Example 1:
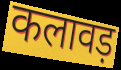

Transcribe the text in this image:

कलावड़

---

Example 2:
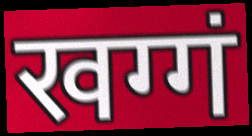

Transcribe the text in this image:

खग्गं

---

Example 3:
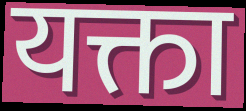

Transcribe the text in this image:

यक्ता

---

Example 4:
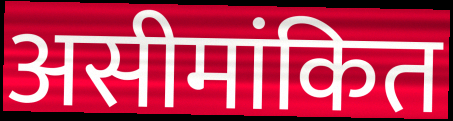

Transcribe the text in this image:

असीमांकित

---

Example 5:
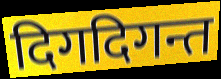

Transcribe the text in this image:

दिगदिगन्त